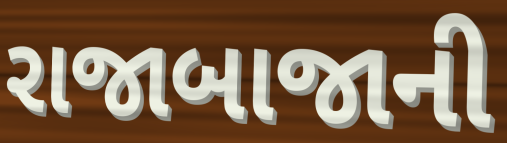
રાજાબાજાની